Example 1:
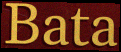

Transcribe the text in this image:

Bata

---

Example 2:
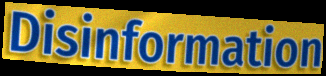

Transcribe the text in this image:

Disinformation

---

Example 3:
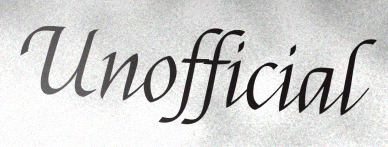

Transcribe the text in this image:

Unofficial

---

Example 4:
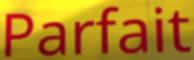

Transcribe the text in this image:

Parfait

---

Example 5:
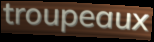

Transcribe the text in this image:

troupeaux